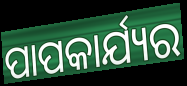
ପାପକାର୍ଯ୍ୟର